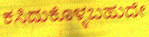
ಕಸಿದುಕೊಳ್ಳಬಹುದೇ